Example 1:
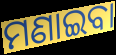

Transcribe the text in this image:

ମଣାଇବା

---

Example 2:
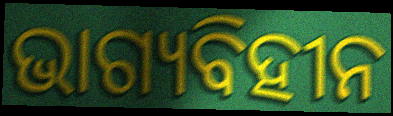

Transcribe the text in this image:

ଭାଗ୍ୟବିହୀନ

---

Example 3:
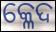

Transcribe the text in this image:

କ୍ଳେଦ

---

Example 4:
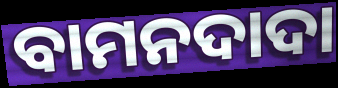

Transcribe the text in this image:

ବାମନଦାଦା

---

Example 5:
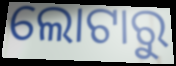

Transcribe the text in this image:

ଲୋଟାରୁ